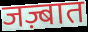
जज़्बात